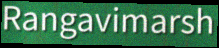
Rangavimarsh